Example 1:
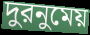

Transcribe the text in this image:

দুরনুমেয়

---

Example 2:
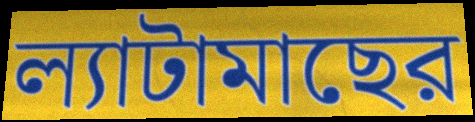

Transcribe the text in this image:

ল্যাটামাছের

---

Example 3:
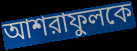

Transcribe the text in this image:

আশরাফুলকে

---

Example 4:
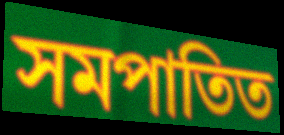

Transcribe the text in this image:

সমপাতিত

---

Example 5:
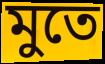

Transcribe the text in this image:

মুতে